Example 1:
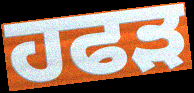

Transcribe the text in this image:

ਹਫੜ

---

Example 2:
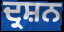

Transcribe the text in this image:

ਦ੍ਰਸ਼ਨ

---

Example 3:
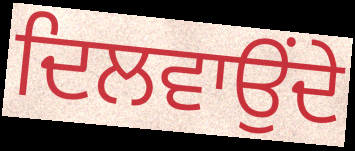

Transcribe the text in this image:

ਦਿਲਵਾਉਂਦੇ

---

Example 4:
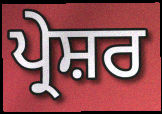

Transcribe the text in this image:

ਪ੍ਰੇਸ਼ਰ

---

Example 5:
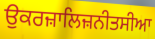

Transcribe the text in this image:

ਉਕਰਜ਼ਾਲਿਜ਼ਨੀਤਸੀਆ